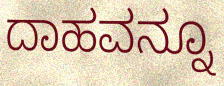
ದಾಹವನ್ನೂ